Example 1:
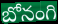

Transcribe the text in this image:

బోనంగి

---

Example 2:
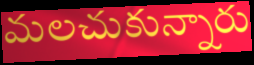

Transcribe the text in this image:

మలచుకున్నారు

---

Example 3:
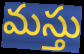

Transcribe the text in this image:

మస్తు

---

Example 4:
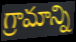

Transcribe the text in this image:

గ్రామాన్ని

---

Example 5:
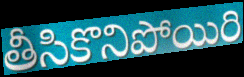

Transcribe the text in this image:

తీసికొనిపోయిరి